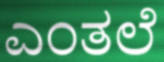
ಎಂತಲೆ